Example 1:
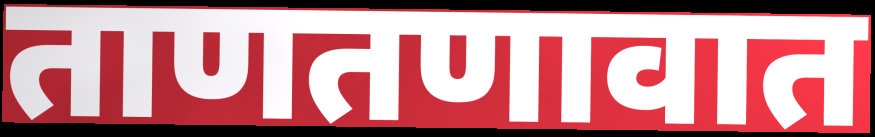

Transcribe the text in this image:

ताणतणावात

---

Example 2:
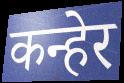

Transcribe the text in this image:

कन्हेर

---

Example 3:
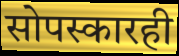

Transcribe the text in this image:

सोपस्कारही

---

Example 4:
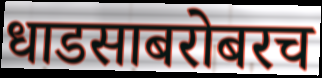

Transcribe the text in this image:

धाडसाबरोबरच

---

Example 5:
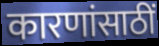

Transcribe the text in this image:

कारणांसाठीं